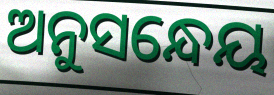
ଅନୁସନ୍ଧେୟ